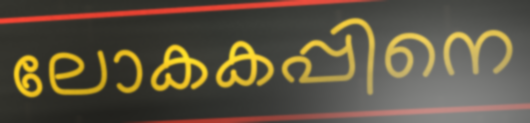
ലോകകപ്പിനെ